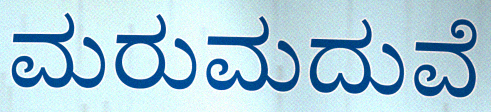
ಮರುಮದುವೆ